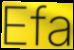
Efa